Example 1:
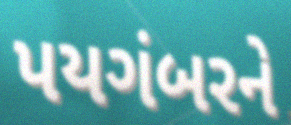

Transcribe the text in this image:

પયગંબરને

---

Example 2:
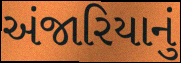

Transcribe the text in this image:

અંજારિયાનું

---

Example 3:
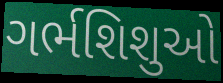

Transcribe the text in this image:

ગર્ભશિશુઓ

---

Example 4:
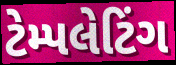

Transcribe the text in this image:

ટેમ્પલેટિંગ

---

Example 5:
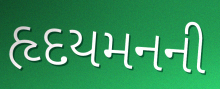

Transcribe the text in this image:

હૃદયમનની